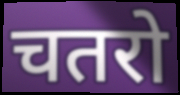
चतरो